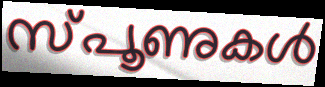
സ്പൂണുകൾ